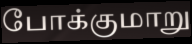
போக்குமாறு